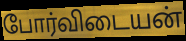
போர்விடையன்